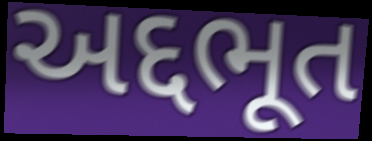
અદ્દભૂત